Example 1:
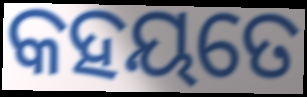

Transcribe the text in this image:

କହୟତେ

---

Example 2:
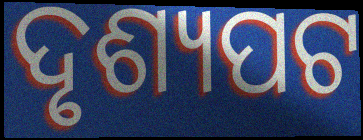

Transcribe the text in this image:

ଦୃଶ୍ୟପଟ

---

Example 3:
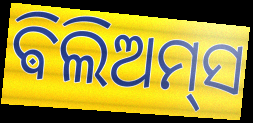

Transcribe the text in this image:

ଵିଲିଅମ୍‌ସ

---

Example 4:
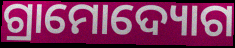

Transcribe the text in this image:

ଗ୍ରାମୋଦ୍ୟୋଗ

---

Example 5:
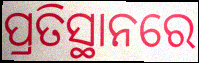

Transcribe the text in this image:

ପ୍ରତିସ୍ଥାନରେ